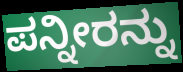
ಪನ್ನೀರನ್ನು